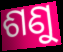
ଶଣୁ